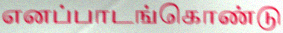
எனப்பாடங்கொண்டு